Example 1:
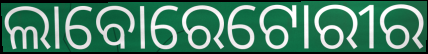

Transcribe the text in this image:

ଲାବୋରେଟୋରୀର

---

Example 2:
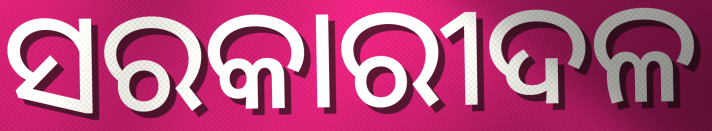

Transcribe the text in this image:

ସରକାରୀଦଳ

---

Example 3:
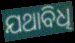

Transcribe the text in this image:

ଯଥାବିଧି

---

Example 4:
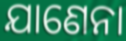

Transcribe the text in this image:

ଯାଣେନା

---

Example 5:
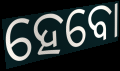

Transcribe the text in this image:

ହେବୋ